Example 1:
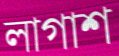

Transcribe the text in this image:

লাগাশ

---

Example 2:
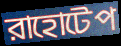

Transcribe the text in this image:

রাহোটেপ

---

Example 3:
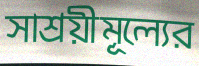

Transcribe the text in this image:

সাশ্রয়ীমূল্যের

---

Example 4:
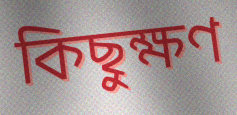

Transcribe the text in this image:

কিছুক্ষণ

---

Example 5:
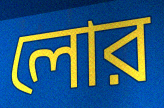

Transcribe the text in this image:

লোর